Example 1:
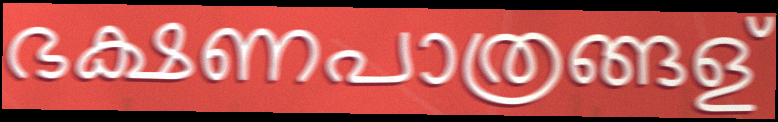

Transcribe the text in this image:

ഭക്ഷണപാത്രങ്ങള്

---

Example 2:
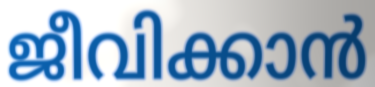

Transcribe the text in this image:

ജീവിക്കാൻ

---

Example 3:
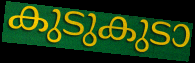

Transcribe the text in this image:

കുടുകുടാ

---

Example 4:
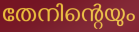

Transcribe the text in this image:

തേനിന്റെയും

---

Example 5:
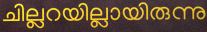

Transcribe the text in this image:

ചില്ലറയില്ലായിരുന്നു